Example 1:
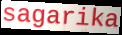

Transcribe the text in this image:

sagarika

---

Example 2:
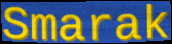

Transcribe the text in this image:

Smarak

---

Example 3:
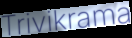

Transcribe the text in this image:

Trivikrama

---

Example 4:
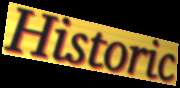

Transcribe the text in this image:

Historic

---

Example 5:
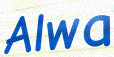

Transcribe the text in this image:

Alwa